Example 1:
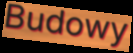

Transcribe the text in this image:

Budowy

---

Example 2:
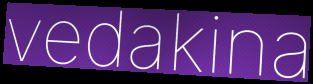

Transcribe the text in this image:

vedakina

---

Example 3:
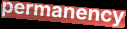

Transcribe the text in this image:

permanency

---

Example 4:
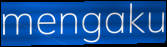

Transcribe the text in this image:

mengaku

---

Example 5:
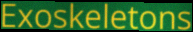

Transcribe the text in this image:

Exoskeletons